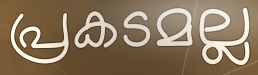
പ്രകടമല്ല